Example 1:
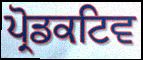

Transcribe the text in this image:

ਪ੍ਰੋਡਕਟਿਵ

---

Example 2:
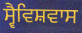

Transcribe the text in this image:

ਸ੍ਵੈਵਿਸ਼ਵਾਸ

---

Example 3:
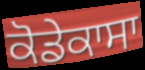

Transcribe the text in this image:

ਕੋਡੇਕਾਸਾ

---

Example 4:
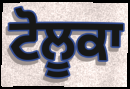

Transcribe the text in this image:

ਟੋਲੂਕਾ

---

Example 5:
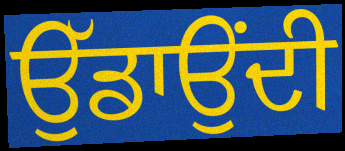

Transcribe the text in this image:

ਉੱਡਾਉਂਦੀ